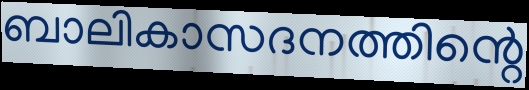
ബാലികാസദനത്തിന്റെ